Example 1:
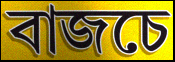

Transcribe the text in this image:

বাজচে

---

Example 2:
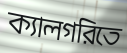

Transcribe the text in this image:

ক্যালগরিতে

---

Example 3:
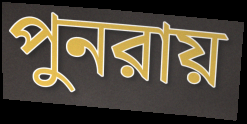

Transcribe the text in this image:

পুনরায়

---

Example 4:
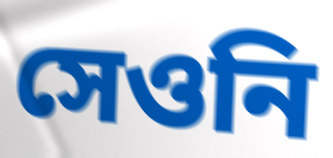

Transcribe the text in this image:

সেওনি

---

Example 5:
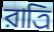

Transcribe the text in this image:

রাত্রি